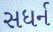
સધર્ન